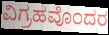
ವಿಗ್ರಹವೊಂದರ